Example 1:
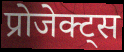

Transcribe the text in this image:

प्रोजेक्ट्स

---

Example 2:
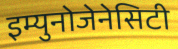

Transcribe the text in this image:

इम्युनोजेनेसिटी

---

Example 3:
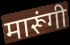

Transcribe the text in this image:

मारूंगी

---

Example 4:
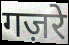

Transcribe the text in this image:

गज़रे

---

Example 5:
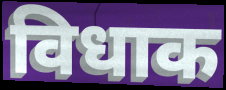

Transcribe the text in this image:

विधाक